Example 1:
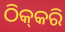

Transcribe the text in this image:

ଠିକ୍‍କରି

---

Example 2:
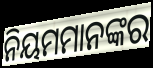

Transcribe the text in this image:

ନିୟମମାନଙ୍କର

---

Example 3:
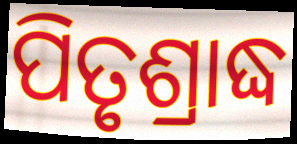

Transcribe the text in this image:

ପିତୃଶ୍ରାଦ୍ଧ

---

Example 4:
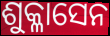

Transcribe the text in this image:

ଶୁକ୍ଳାସେନ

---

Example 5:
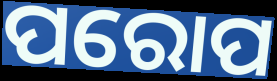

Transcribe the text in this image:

ପରୋପ